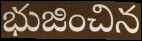
భుజించిన